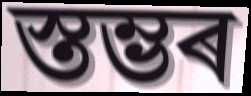
স্তম্ভৰ